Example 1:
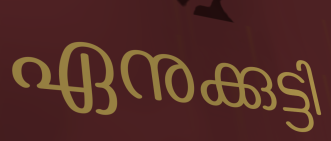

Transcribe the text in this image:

ഏനുക്കുട്ടി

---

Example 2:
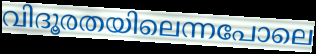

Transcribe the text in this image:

വിദൂരതയിലെന്നപോലെ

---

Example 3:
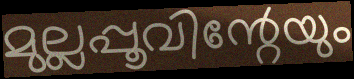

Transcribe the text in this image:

മുല്ലപ്പൂവിന്റേയും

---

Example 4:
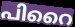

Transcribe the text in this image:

പിറൈ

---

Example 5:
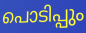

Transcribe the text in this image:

പൊടിപ്പും